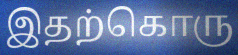
இதற்கொரு